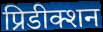
प्रिडीक्शन